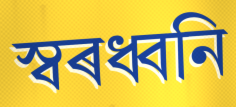
স্বৰধ্বনি